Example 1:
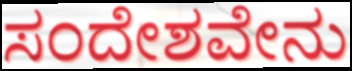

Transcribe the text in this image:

ಸಂದೇಶವೇನು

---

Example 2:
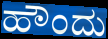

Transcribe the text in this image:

ಹೌಂದು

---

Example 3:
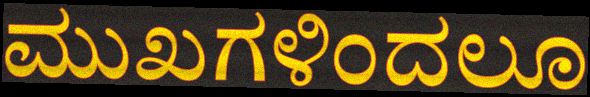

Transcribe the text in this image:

ಮುಖಗಳಿಂದಲೂ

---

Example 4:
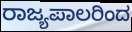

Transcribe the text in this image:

ರಾಜ್ಯಪಾಲರಿಂದ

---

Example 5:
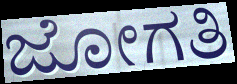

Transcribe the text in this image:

ಜೋಗತಿ